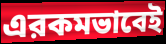
এরকমভাবেই